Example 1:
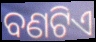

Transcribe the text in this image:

ବଣଟିଏ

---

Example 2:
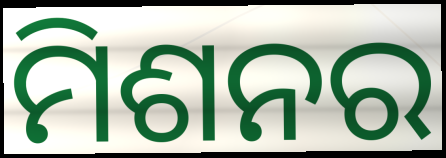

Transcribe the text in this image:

ମିଶନର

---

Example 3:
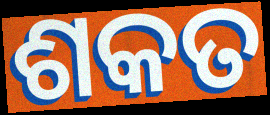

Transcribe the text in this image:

ଶକତ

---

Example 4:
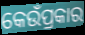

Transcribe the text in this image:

କେଉଁପ୍ରକାର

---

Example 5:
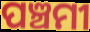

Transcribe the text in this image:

ପଞ୍ଚମୀ